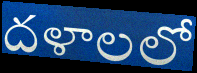
దళాలలో